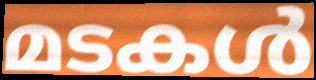
മടകൾ